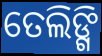
ତେଲିଙ୍ଗି